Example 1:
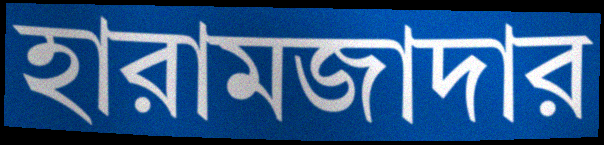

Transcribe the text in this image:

হারামজাদার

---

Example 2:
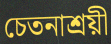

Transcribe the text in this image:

চেতনাশ্রয়ী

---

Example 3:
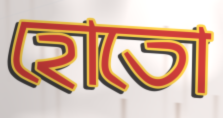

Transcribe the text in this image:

হোতো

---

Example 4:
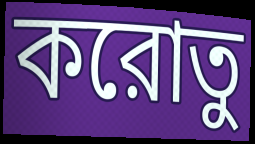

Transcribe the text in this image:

করোতু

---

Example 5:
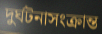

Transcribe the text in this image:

দুর্ঘটনাসংক্রান্ত